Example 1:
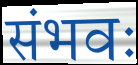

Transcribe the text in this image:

संभवः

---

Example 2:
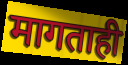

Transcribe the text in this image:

मागताही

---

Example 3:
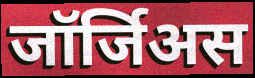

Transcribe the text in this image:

जॉर्जिअस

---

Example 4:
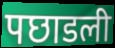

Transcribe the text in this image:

पछाडली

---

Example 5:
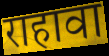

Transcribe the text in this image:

राहावा